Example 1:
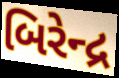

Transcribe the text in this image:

બિરેન્દ્ર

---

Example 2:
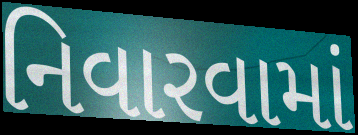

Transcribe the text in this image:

નિવારવામાં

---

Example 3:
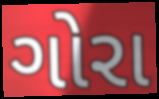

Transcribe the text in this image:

ગોરા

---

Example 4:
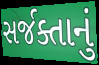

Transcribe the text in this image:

સર્જક્તાનું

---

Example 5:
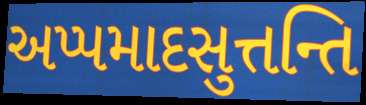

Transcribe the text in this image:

અપ્પમાદસુત્તન્તિ